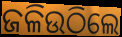
ଜଳିଉଠିଲେ